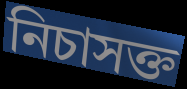
নিচাসক্ত